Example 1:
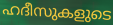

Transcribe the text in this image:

ഹദീസുകളുടെ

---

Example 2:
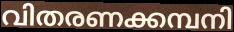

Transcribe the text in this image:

വിതരണക്കമ്പനി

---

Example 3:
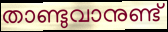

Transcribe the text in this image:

താണ്ടുവാനുണ്ട്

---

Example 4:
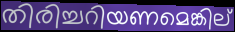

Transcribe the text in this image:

തിരിച്ചറിയണമെങ്കില്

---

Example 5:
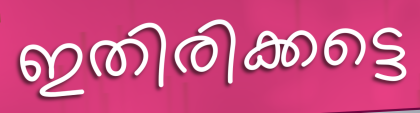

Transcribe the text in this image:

ഇതിരിക്കട്ടെ